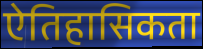
ऐतिहासिकता